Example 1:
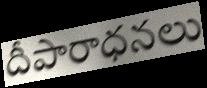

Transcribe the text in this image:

దీపారాధనలు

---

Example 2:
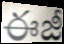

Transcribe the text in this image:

ఈజీ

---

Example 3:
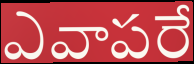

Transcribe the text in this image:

ఎవాపరే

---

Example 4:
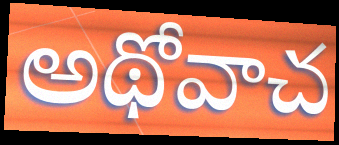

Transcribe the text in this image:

అథోవాచ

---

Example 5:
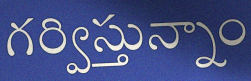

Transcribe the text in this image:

గర్విస్తున్నాం